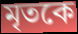
মৃতকে